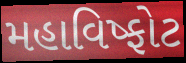
મહાવિષ્ફોટ